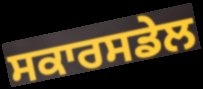
ਸਕਾਰਸਡੇਲ